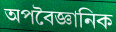
অপবৈজ্ঞানিক